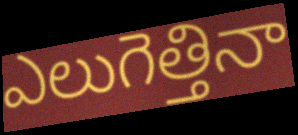
ఎలుగెత్తినా